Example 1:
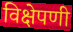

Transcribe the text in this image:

विक्षेपणी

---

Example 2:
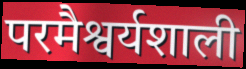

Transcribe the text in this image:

परमैश्वर्यशाली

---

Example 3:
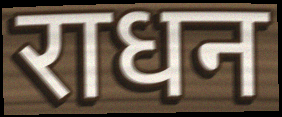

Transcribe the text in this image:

राधन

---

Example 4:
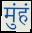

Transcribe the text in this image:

मुंहं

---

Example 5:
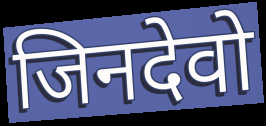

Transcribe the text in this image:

जिनदेवो